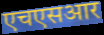
एचएसआर